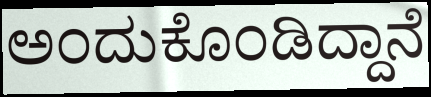
ಅಂದುಕೊಂಡಿದ್ದಾನೆ